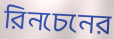
রিনচেনের